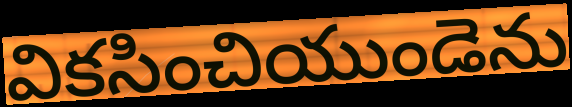
వికసించియుండెను